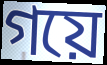
গয়ে